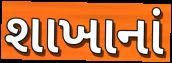
શાખાનાં